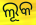
ଲୂକ